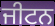
ਜੀਟਨ